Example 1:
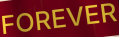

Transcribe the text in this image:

FOREVER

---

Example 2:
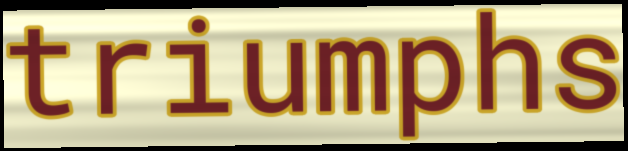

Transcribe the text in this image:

triumphs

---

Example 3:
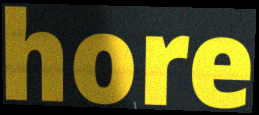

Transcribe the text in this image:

hore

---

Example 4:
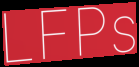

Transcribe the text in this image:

LFPs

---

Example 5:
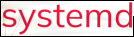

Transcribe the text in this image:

systemd